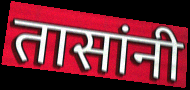
तासांनी